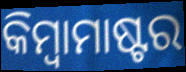
କିମ୍ୱାମାଷ୍ଟର